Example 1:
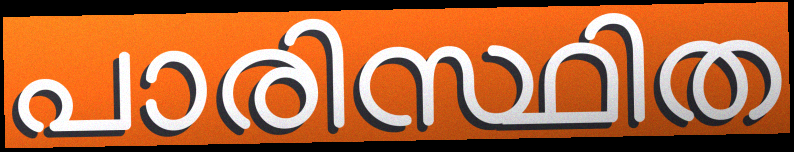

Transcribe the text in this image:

പാരിസ്ഥിത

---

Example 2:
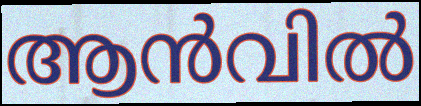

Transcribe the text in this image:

ആൻവിൽ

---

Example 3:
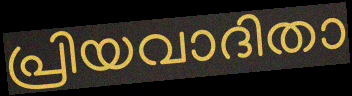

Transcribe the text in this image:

പ്രിയവാദിതാ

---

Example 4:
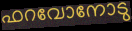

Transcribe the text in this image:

ഫറവോനോടു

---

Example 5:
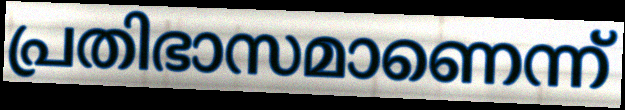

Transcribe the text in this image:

പ്രതിഭാസമാണെന്ന്